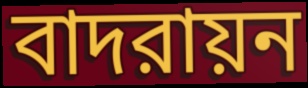
বাদরায়ন